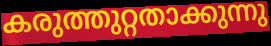
കരുത്തുറ്റതാക്കുന്നു